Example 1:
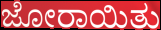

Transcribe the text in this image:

ಜೋರಾಯಿತು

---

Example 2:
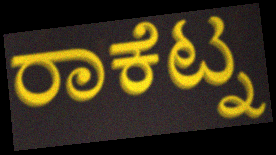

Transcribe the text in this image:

ರಾಕೆಟ್ನ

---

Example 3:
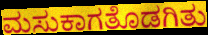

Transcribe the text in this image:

ಮಸುಕಾಗತೊಡಗಿತು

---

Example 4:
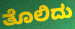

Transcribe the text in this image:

ತೊಲಿದು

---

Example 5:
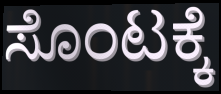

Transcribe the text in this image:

ಸೊಂಟಕ್ಕೆ